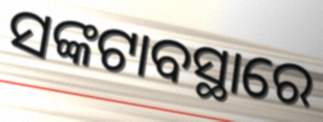
ସଙ୍କଟାବସ୍ଥାରେ